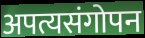
अपत्यसंगोपन